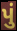
પું